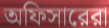
অফিসারেরা